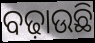
ବଢ଼ାଉଛି